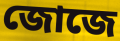
জোজে